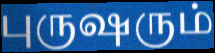
புருஷரும்